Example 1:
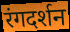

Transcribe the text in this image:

रंगदर्शन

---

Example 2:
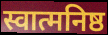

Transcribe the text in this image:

स्वात्मनिष्ठ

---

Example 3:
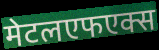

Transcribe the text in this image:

मेटलएफएक्स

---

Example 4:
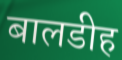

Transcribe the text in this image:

बालडीह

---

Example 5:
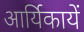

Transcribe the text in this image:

आर्यिकायें